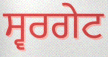
ਸ੍ਵਰਗੇਟ